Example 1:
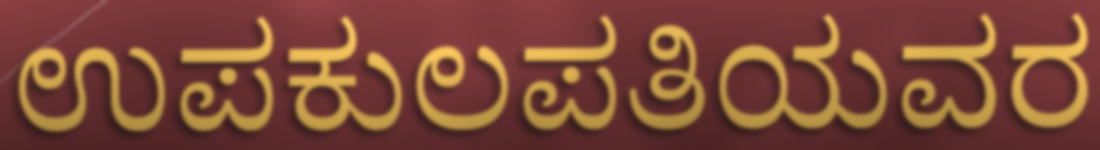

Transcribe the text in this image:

ಉಪಕುಲಪತಿಯವರ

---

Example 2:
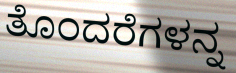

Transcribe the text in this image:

ತೊಂದರೆಗಳನ್ನ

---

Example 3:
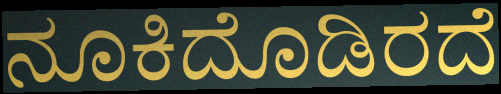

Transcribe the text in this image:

ನೂಕಿದೊಡಿರದೆ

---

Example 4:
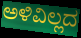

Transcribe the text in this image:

ಅಳಿವಿಲ್ಲದ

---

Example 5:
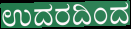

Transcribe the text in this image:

ಉದರದಿಂದ